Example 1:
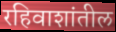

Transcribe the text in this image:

रहिवाशांतील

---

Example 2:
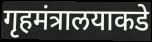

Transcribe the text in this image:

गृहमंत्रालयाकडे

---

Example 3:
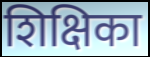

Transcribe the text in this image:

शिक्षिका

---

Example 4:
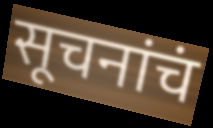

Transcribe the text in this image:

सूचनांचं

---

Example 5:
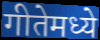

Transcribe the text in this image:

गीतेमध्ये